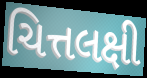
ચિત્તલક્ષી